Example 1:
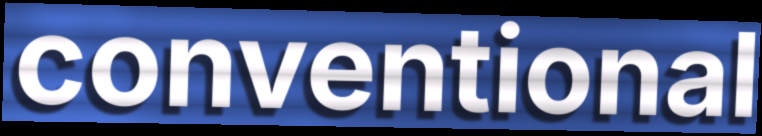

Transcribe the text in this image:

conventional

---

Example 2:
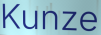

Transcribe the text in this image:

Kunze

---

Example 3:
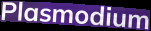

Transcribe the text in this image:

Plasmodium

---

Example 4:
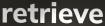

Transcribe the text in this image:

retrieve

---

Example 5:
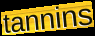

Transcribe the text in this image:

tannins